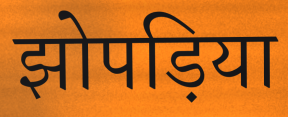
झोपड़िया